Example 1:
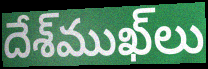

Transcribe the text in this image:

దేశ్‌ముఖ్‌లు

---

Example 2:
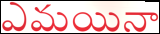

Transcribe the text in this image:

ఎమయినా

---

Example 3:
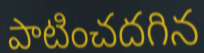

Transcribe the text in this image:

పాటించదగిన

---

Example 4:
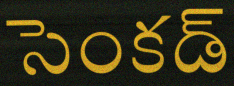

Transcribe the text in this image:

సెంకడ్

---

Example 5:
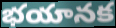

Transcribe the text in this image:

భయానక